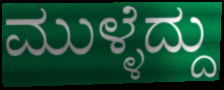
ಮುಳ್ಳೆದ್ದು